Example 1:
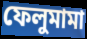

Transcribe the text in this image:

ফেলুমামা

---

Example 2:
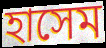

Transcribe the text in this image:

হাসেম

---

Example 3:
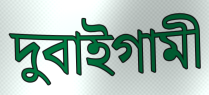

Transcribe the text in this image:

দুবাইগামী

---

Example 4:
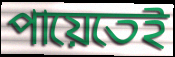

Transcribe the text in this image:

পায়েতেই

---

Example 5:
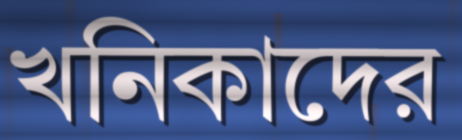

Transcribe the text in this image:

খনিকাদের